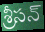
శ్రీసన్